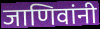
जाणिवांनी